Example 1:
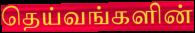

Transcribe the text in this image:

தெய்வங்களின்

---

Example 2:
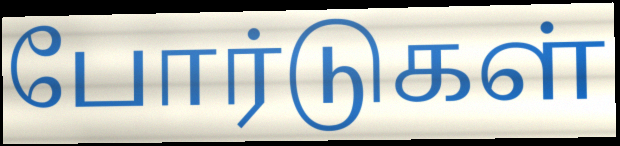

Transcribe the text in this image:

போர்டுகள்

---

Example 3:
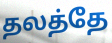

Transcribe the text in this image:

தலத்தே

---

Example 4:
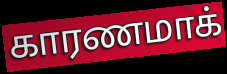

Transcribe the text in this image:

காரணமாக்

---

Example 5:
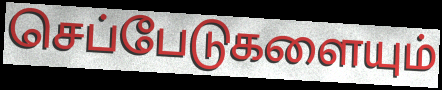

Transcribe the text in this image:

செப்பேடுகளையும்